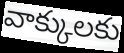
వాక్కులకు